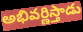
అభివర్ణిస్తాడు